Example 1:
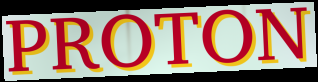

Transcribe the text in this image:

PROTON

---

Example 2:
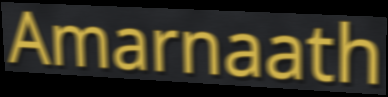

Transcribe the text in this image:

Amarnaath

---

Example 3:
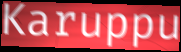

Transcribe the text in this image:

Karuppu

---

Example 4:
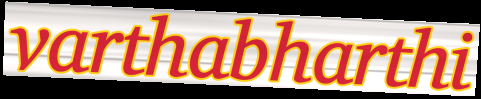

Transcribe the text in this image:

varthabharthi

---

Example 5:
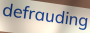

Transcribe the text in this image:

defrauding